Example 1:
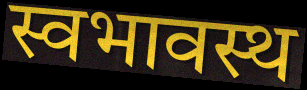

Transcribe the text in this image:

स्वभावस्थ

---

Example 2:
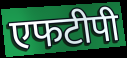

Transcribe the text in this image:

एफटीपी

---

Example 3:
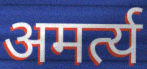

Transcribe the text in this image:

अमर्त्य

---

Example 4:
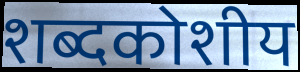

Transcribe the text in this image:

शब्दकोशीय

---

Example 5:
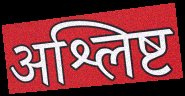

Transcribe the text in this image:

अश्लिष्ट